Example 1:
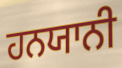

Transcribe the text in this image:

ਹਨਯਾਨੀ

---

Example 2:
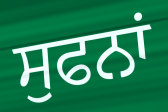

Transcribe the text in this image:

ਸੁਫਨਾਂ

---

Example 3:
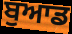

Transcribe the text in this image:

ਬੁਆਡ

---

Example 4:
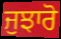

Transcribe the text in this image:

ਜੁਝਾਰੋ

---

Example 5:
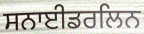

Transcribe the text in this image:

ਸਨਾਈਡਰਲਿਨ